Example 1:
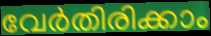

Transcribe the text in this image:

വേർതിരിക്കാം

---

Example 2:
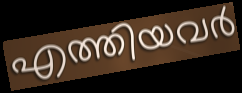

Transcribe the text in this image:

എത്തിയവർ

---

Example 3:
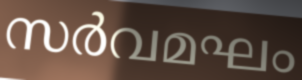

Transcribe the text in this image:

സർവമഘം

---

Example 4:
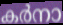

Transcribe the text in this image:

കർനാ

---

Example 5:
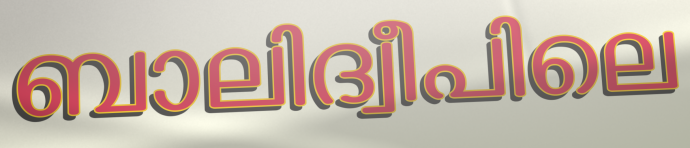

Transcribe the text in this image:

ബാലിദ്വീപിലെ